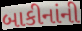
બાકીનાંની